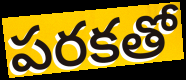
పరకతో